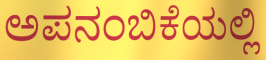
ಅಪನಂಬಿಕೆಯಲ್ಲಿ